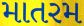
માતરમ